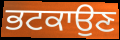
ਭਟਕਾਉਣ